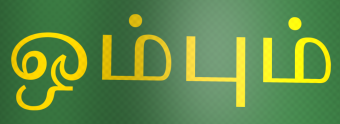
ஒம்பும்